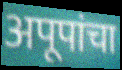
अपूपांचा